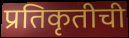
प्रतिकृतीची